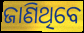
ଜାଣିଥିବେ